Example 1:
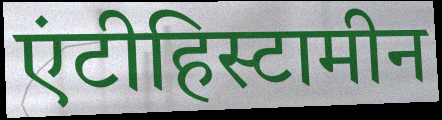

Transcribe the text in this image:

एंटीहिस्टामीन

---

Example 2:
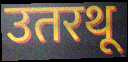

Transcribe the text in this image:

उतरथू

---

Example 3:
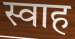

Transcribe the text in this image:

स्वाह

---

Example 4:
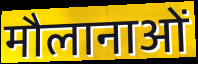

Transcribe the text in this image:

मौलानाओं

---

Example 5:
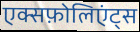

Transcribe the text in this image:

एक्सफ़ोलिएंट्स